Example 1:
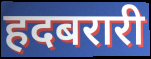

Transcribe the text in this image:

हदबरारी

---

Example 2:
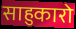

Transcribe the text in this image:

साहुकारो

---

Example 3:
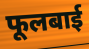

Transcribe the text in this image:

फूलबाई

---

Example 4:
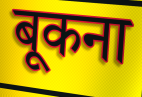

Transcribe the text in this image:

बूकना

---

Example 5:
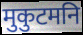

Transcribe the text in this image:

मुकुटमनि